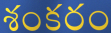
శంకరం